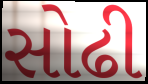
સોઢી